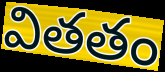
వితతం